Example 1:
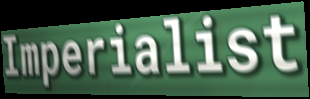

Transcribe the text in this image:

Imperialist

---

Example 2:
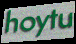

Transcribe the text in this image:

hoytu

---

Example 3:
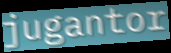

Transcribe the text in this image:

jugantor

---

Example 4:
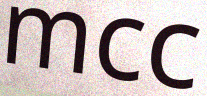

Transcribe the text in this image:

mcc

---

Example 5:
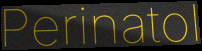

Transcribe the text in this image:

Perinatol